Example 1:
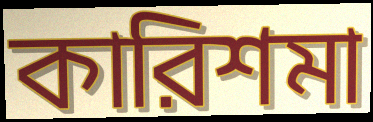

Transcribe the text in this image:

কারিশমা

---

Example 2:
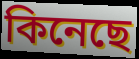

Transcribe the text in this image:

কিনেছে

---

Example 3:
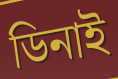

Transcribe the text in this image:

ডিনাই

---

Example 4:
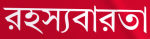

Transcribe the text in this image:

রহস্যবারতা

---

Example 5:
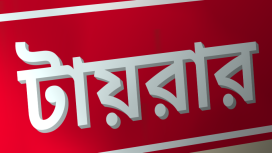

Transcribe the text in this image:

টায়রার